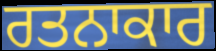
ਰਤਨਾਕਾਰ